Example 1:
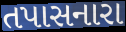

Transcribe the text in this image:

તપાસનારા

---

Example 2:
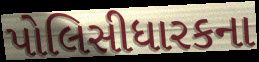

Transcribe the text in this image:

પોલિસીધારકના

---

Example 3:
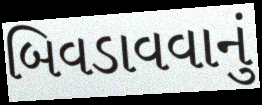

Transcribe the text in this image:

બિવડાવવાનું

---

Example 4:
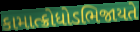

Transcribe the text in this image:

કામાત્ક્રોધોઽભિજાયતે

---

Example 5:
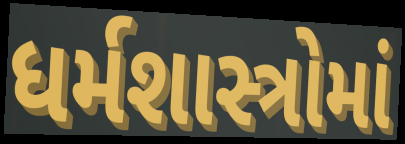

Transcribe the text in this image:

ધર્મશાસ્ત્રોમાં